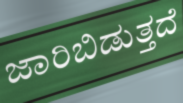
ಜಾರಿಬಿಡುತ್ತದೆ